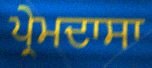
ਪ੍ਰੇਮਦਾਸਾ